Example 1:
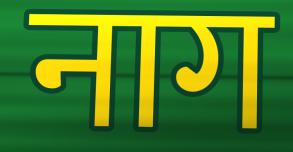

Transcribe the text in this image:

नाग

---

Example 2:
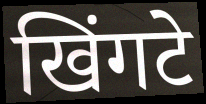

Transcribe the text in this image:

खिंगटे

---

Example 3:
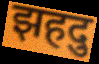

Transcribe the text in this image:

झहदु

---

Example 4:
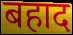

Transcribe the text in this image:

बहाद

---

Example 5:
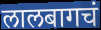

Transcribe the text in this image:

लालबागचं